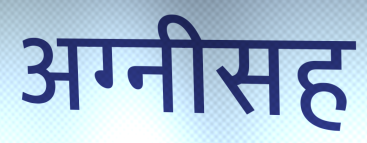
अग्नीसह